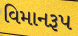
વિમાનરૂપ